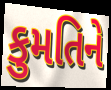
કુમતિને